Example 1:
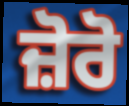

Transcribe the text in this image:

ਜ਼ੋਰੋ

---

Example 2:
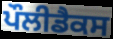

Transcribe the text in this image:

ਪੌਲੀਡੈਕਸ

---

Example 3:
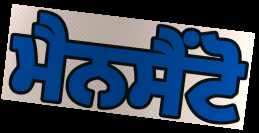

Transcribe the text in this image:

ਮੈਨਸੈਂਟੋ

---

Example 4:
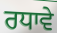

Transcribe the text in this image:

ਰਧਾਵੇ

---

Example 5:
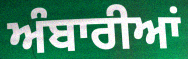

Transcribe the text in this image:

ਅੰਬਾਰੀਆਂ